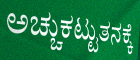
ಅಚ್ಚುಕಟ್ಟುತನಕ್ಕೆ